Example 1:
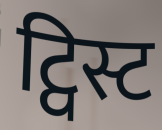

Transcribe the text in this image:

ट्विस्ट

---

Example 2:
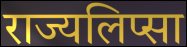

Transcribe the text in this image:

राज्यलिप्सा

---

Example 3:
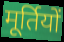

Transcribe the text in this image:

मूर्तियों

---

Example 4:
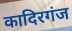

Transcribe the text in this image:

कादिरगंज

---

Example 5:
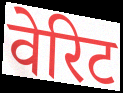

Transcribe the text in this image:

वेरिट